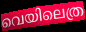
വെയിലെത്ര